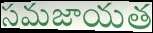
సమజాయత